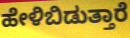
ಹೇಳಿಬಿಡುತ್ತಾರೆ